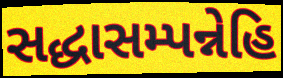
સદ્ધાસમ્પન્નેહિ